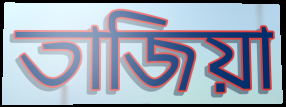
তাজিয়া